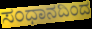
ಸಂಧಾನದಿಂದ